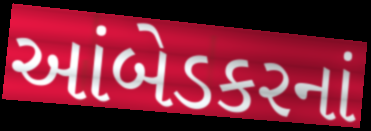
આંબેડકરનાં